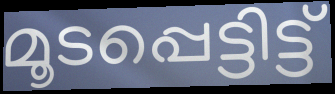
മൂടപ്പെട്ടിട്ട്